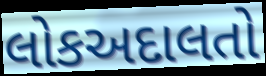
લોકઅદાલતો